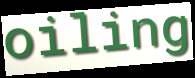
oiling